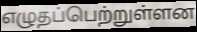
எழுதப்பெற்றுள்ளன